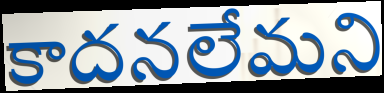
కాదనలేమని